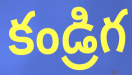
కండ్రిగ